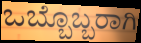
ಒಬ್ಬೊಬ್ಬರಾಗಿ